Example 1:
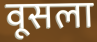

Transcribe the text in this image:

वूसला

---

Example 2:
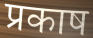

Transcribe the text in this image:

प्रकाष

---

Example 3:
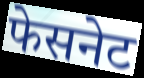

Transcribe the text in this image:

फेसनेट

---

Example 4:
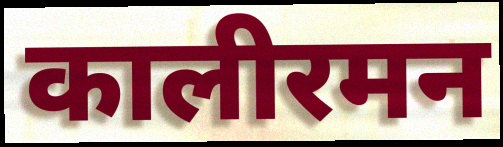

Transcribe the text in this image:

कालीरमन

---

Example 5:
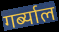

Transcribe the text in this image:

गर्ब्याल